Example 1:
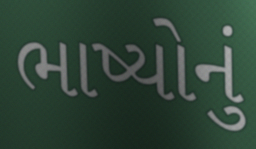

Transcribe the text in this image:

ભાષ્યોનું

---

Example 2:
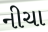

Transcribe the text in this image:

નીચા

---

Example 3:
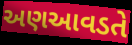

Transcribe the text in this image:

અણઆવડતે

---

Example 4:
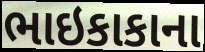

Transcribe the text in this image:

ભાઇકાકાના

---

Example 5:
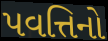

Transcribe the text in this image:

પવત્તિનો